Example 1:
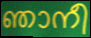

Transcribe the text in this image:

ഞാനീ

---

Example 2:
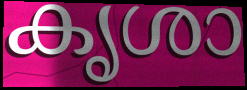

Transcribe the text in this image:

കൃശാ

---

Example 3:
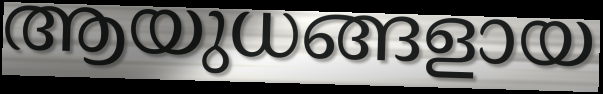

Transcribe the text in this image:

ആയുധങ്ങളായ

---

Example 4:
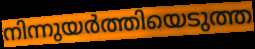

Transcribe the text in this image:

നിന്നുയർത്തിയെടുത്ത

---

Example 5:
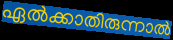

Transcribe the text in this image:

ഏൽക്കാതിരുന്നാൽ